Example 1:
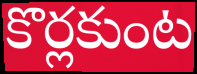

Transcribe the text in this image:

కొర్లకుంట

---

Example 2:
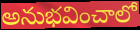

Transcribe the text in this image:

అనుభవించాలో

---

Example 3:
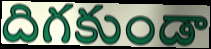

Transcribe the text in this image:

దిగకుండా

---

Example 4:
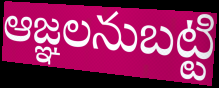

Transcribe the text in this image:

ఆజ్ఞలనుబట్టి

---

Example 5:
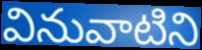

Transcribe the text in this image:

వినువాటిని